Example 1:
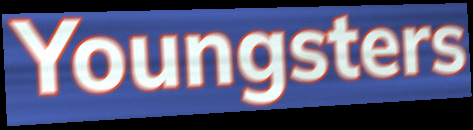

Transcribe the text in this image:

Youngsters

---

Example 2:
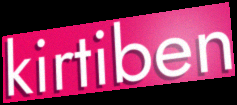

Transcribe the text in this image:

kirtiben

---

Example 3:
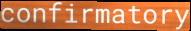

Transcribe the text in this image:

confirmatory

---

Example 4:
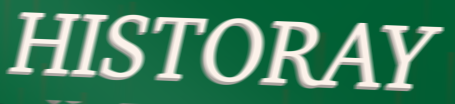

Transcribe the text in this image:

HISTORAY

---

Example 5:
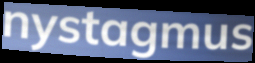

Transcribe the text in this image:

nystagmus